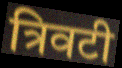
त्रिवटी